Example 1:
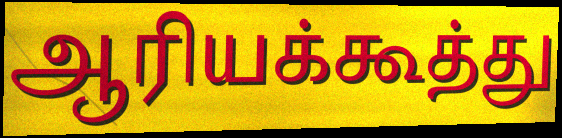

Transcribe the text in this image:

ஆரியக்கூத்து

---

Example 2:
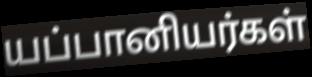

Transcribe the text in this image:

யப்பானியர்கள்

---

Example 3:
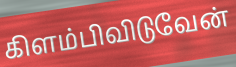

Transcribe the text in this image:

கிளம்பிவிடுவேன்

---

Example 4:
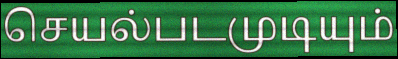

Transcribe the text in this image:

செயல்படமுடியும்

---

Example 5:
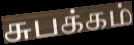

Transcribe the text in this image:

சுபக்கம்